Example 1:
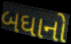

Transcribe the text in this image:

બઘાનો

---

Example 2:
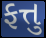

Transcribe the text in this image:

ફત્તુ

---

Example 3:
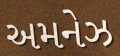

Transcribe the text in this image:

અમનેઝ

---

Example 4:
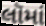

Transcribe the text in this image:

લૉમાં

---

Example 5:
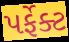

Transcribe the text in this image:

પર્ફેક્ટ